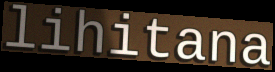
lihitana